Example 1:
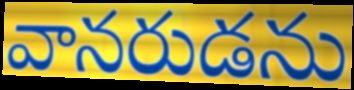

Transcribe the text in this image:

వానరుడను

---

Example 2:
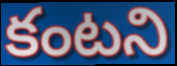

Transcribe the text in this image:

కంటని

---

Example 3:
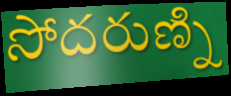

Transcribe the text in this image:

సోదరుణ్ని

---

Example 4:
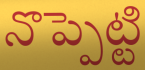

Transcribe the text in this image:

నొప్పెట్టి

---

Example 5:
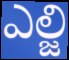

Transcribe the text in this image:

ఎల్జి